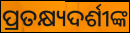
ପ୍ରତକ୍ଷ୍ୟଦର୍ଶୀଙ୍କ